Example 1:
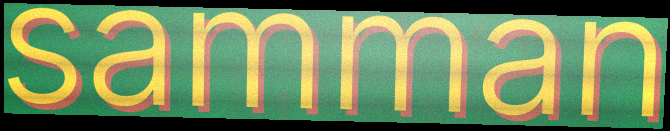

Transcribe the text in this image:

samman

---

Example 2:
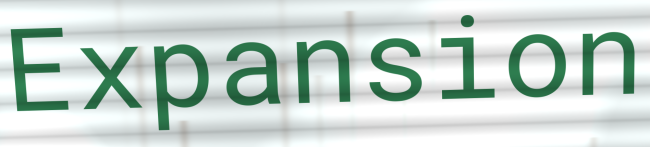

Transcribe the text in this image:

Expansion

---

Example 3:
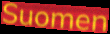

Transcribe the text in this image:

Suomen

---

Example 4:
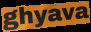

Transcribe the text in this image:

ghyava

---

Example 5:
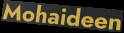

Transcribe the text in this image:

Mohaideen